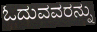
ಓದುವವರನ್ನು